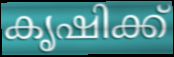
കൃഷിക്ക്